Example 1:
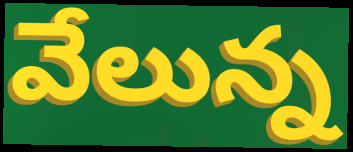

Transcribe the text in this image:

వేలున్న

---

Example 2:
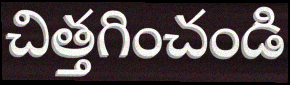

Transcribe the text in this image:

చిత్తగించండి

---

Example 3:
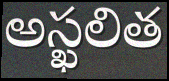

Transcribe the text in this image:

అస్ఖలిత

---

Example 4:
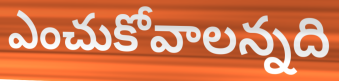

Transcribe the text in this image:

ఎంచుకోవాలన్నది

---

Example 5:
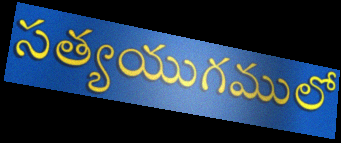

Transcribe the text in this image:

సత్యయుగములో